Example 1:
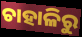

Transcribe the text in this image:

ଚାହାଳିରୁ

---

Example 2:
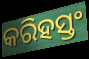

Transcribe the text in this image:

କରିହସ୍ତଂ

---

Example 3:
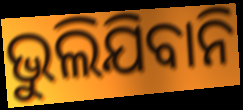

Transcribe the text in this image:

ଭୁଲିଯିବାନି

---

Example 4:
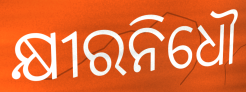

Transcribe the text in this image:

କ୍ଷୀରନିଧୌ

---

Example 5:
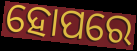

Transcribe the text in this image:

ହୋପରେ